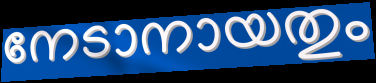
നേടാനായതും